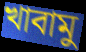
খাবামু